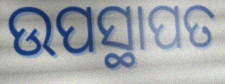
ଉପସ୍ଥାପତ